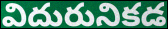
విదురునికడ